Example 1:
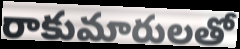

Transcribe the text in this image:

రాకుమారులతో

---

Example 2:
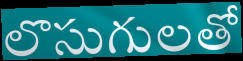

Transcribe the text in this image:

లొసుగులతో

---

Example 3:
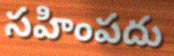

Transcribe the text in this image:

సహింపదు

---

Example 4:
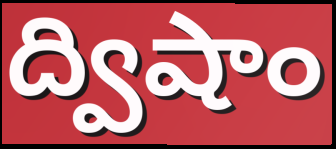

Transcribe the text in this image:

ద్విషాం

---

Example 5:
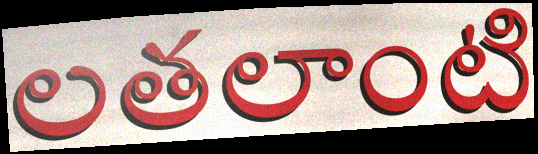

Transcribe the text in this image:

లతలాంటి